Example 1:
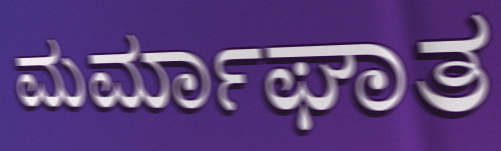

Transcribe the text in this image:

ಮರ್ಮಾಘಾತ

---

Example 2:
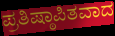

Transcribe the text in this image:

ಪ್ರತಿಷ್ಠಾಪಿತವಾದ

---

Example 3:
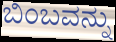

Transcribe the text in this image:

ಬಿಂಬವನ್ನು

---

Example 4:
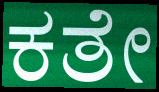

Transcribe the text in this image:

ಕತೇ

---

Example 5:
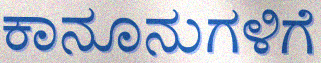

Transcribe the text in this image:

ಕಾನೂನುಗಳಿಗೆ